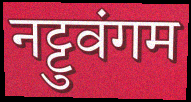
नट्टुवंगम